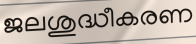
ജലശുദ്ധീകരണ